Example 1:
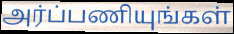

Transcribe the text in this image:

அர்ப்பணியுங்கள்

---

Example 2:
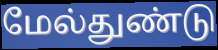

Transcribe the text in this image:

மேல்துண்டு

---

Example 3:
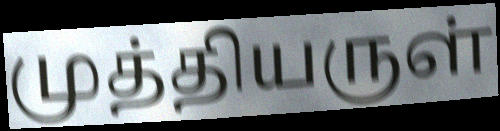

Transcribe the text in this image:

முத்தியருள்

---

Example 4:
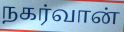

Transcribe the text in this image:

நகர்வான்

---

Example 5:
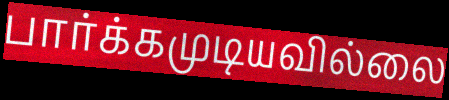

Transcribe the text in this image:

பார்க்கமுடியவில்லை